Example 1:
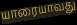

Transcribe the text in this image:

யாரையாவது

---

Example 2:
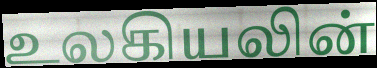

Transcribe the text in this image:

உலகியலின்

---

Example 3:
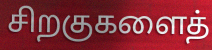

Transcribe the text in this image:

சிறகுகளைத்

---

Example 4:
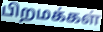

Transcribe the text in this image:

பிறமக்கள்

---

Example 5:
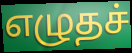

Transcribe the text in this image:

எழுதச்